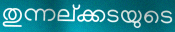
തുന്നല്ക്കടയുടെ